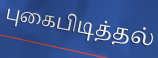
புகைபிடித்தல்